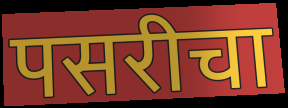
पसरीचा